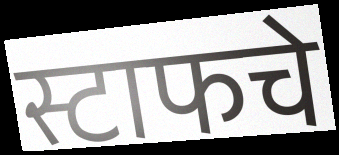
स्टाफचे